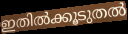
ഇതിൽക്കൂടുതൽ